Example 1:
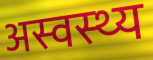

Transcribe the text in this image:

अस्वस्थ्य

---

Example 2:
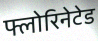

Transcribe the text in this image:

फ्लोरिनेटेड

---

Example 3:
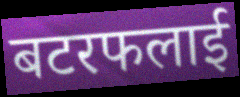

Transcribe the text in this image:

बटरफलाई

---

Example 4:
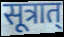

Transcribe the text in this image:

सूत्रात्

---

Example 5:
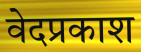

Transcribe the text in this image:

वेदप्रकाश